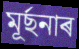
মূৰ্ছনাৰ